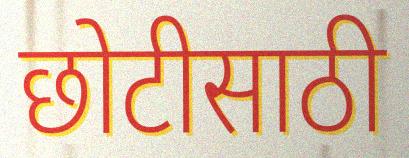
छोटीसाठी